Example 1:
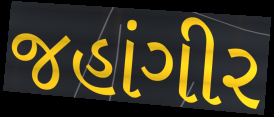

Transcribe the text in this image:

જહાંગીર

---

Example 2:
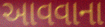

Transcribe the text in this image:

આવવાના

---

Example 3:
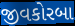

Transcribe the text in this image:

જીવકોરબા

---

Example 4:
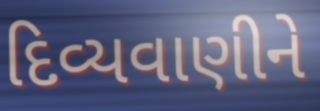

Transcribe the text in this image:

દિવ્યવાણીને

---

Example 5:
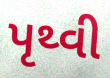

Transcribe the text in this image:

પૃથ્વી